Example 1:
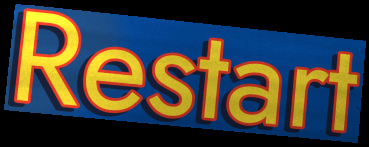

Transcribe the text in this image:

Restart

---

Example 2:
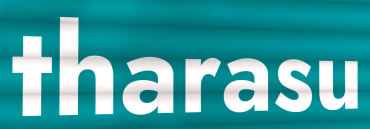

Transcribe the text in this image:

tharasu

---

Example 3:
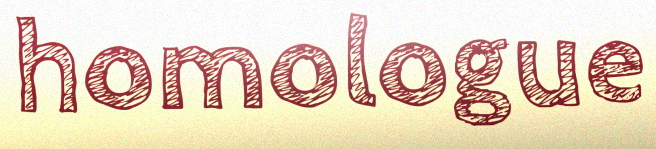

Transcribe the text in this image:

homologue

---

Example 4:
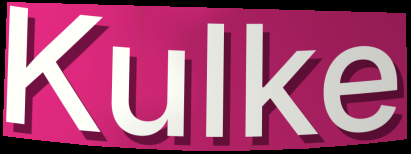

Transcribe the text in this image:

Kulke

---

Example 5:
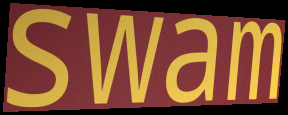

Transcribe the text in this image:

swam